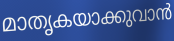
മാതൃകയാക്കുവാൻ